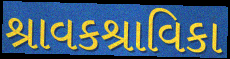
શ્રાવકશ્રાવિકા